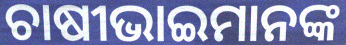
ଚାଷୀଭାଇମାନଙ୍କ